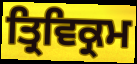
ਤ੍ਰਿਵਿਕ੍ਰਮ